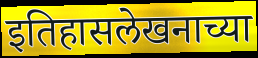
इतिहासलेखनाच्या